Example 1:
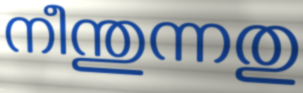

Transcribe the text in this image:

നീന്തുന്നതു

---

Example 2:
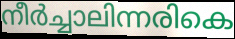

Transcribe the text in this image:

നീർച്ചാലിന്നരികെ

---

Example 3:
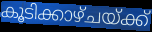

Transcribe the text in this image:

കൂടിക്കാഴ്ചയ്ക്ക്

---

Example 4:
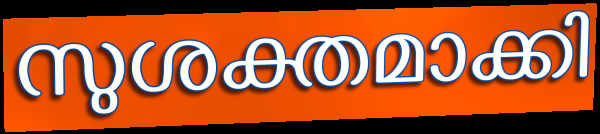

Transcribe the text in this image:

സുശക്തമാക്കി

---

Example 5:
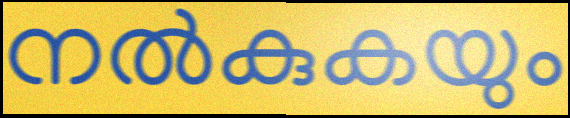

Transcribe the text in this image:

നൽകുകയും